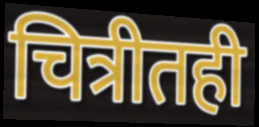
चित्रीतही